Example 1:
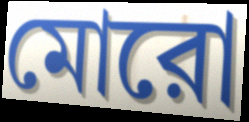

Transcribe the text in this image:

মোরো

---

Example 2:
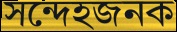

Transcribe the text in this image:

সন্দেহজনক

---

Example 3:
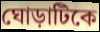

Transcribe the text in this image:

ঘোড়াটিকে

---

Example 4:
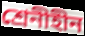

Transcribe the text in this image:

শ্রেনীহীন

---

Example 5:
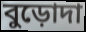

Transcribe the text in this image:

বুড়োদা